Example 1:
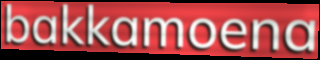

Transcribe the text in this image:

bakkamoena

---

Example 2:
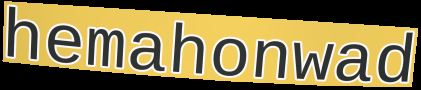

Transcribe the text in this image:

hemahonwad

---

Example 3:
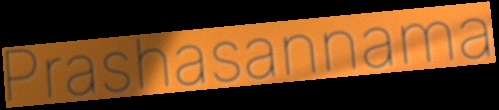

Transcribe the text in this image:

Prashasannama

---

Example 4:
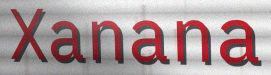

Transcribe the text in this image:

Xanana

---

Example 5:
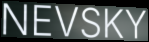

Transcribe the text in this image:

NEVSKY